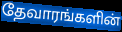
தேவாரங்களின்